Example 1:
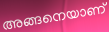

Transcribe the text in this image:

അങ്ങനെയാണ്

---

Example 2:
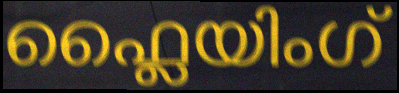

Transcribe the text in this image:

ഫ്ലൈയിംഗ്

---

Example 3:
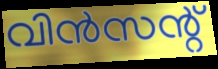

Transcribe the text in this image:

വിൻസന്റ്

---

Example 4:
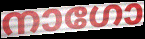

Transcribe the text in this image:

നാഗോ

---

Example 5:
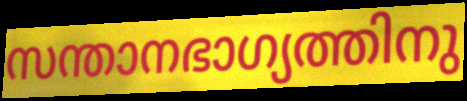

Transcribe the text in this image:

സന്താനഭാഗ്യത്തിനു